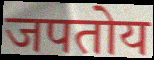
जपतोय